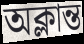
অক্লান্ত